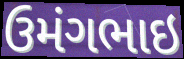
ઉમંગભાઇ